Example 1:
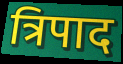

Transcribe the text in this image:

त्रिपाद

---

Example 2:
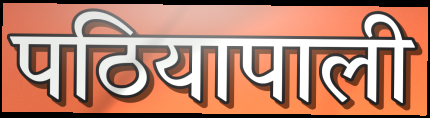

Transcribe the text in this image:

पठियापाली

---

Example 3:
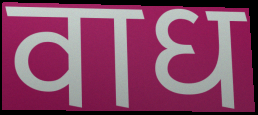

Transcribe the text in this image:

वाध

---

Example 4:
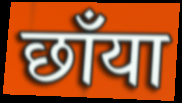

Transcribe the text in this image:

छाँया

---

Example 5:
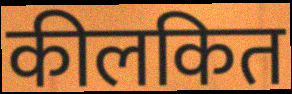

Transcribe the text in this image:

कीलकित